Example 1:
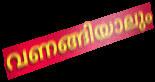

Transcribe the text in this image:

വണങ്ങിയാലും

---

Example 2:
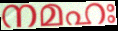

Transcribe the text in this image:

നമഹഃ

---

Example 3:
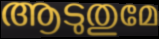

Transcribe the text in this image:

ആടുതുമേ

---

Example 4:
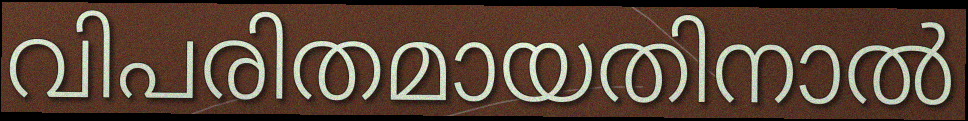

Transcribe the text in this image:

വിപരിതമായതിനാൽ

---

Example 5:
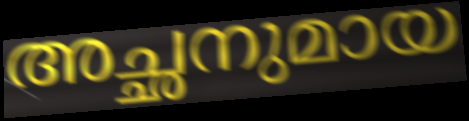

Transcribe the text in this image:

അച്ഛനുമായ